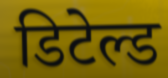
डिटेल्ड